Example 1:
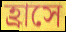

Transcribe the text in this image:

হ্রাসে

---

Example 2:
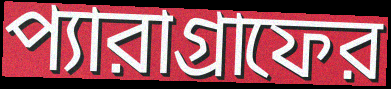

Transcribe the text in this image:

প্যারাগ্রাফের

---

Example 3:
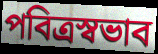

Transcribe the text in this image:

পবিত্রস্বভাব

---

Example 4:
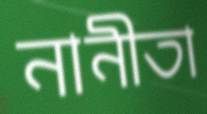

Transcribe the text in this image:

নানীতা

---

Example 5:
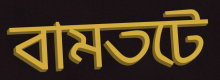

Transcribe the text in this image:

বামতটে